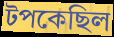
টপকেছিল